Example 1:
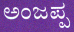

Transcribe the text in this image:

ಅಂಜಪ್ಪ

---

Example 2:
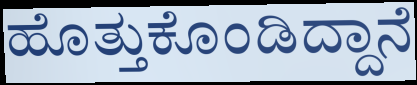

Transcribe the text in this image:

ಹೊತ್ತುಕೊಂಡಿದ್ದಾನೆ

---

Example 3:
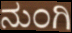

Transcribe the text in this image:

ನುಂಗಿ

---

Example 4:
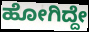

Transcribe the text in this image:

ಹೋಗಿದ್ದೇ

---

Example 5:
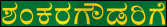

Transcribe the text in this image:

ಶಂಕರಗೌಡರಿಗೆ